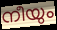
നീയും